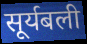
सूर्यबली